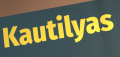
Kautilyas